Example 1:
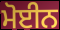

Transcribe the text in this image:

ਮੋਈਨ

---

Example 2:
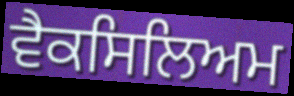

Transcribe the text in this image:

ਵੈਕਸਿਲਿਅਮ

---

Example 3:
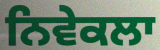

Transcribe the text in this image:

ਨਿਵੇਕਲਾ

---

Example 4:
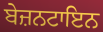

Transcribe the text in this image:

ਬੇਜ਼ਨਟਾਇਨ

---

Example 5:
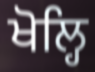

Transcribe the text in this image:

ਖੋਲ੍ਹਿ